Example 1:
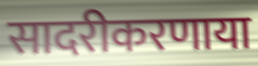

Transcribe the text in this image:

सादरीकरणाया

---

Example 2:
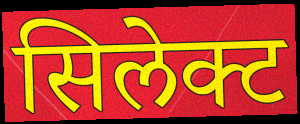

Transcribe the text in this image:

सिलेक्ट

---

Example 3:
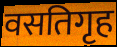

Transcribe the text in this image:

वसतिगृह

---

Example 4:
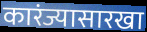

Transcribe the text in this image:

कारंज्यासारखा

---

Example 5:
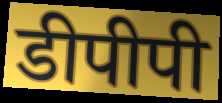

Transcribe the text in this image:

डीपीपी